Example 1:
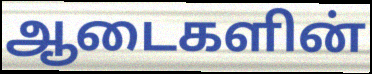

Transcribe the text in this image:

ஆடைகளின்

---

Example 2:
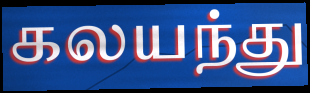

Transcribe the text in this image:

கலயந்து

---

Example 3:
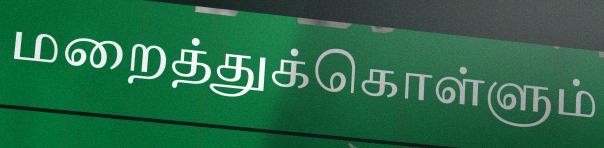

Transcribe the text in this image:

மறைத்துக்கொள்ளும்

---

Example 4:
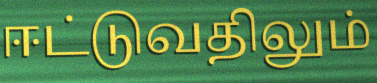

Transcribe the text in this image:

ஈட்டுவதிலும்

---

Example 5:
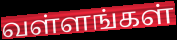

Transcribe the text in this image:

வள்ளங்கள்